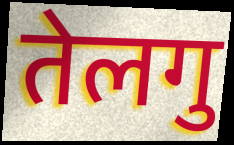
तेलगु